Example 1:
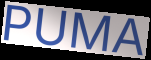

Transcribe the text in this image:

PUMA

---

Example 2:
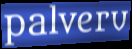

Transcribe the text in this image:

palveru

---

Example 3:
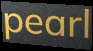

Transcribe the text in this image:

pearl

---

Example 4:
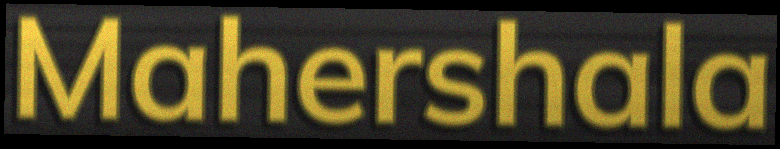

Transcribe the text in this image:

Mahershala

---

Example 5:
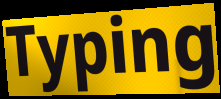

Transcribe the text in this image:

Typing